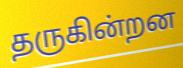
தருகின்றன